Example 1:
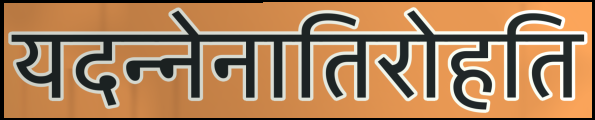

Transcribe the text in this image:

यदन्नेनातिरोहति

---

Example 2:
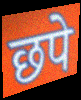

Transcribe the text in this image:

छपे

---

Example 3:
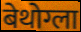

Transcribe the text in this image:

बेथोग्ला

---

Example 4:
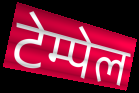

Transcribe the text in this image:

टेम्पेल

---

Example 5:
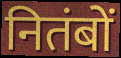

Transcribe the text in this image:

नितंबों